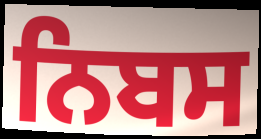
ਨਿਬਸ